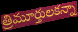
త్రిమూర్తులకన్నా